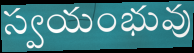
స్వయంభువు